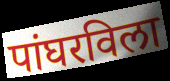
पांघरविला